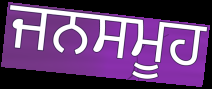
ਜਨਸਮੂਹ